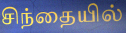
சிந்தையில்